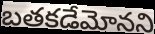
బతకడేమోనని